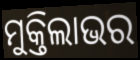
ମୁକ୍ତିଲାଭର